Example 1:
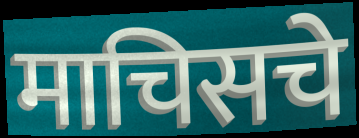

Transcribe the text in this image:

माचिसचे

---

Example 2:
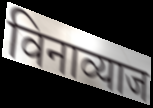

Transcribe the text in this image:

विनाव्याज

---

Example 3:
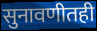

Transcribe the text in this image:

सुनावणीतही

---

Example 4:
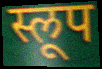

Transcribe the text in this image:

स्लूप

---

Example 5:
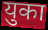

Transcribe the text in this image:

युका